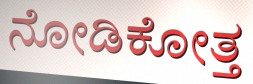
ನೋಡಿಕೋತ್ತ